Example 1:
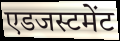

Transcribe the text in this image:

एडजस्टमेंट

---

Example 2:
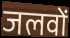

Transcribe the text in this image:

जलवों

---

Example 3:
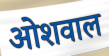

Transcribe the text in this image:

ओशवाल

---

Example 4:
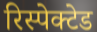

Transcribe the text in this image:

रिस्पेक्टेड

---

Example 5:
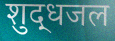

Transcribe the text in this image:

शुद्धजल